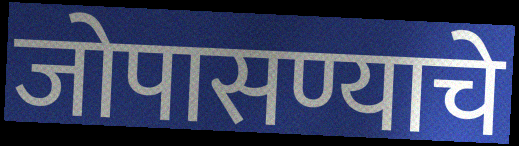
जोपासण्याचे